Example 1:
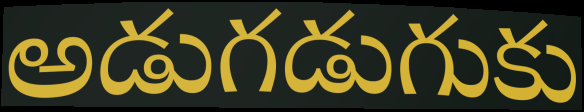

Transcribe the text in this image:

అడుగడుగుకు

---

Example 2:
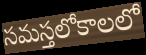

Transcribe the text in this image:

సమస్తలోకాలలో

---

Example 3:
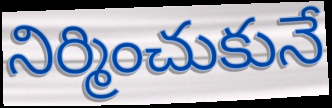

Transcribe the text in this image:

నిర్మించుకునే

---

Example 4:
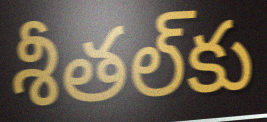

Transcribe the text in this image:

శీతల్‌కు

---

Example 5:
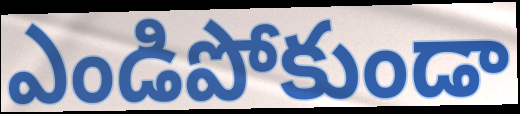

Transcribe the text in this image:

ఎండిపోకుండా